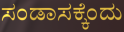
ಸಂಡಾಸಕ್ಕೆಂದು